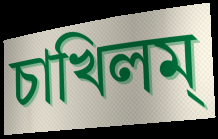
চাখিলম্